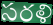
సరళి